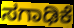
ಸಗಾಢಿಕೆ